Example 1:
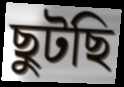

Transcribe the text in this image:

ছুটছি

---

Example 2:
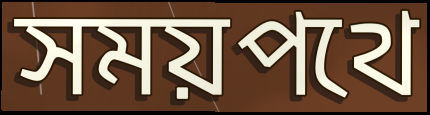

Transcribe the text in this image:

সময়পথে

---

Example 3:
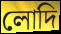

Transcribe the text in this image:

লোদি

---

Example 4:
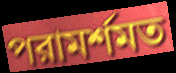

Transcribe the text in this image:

পরামর্শমত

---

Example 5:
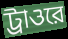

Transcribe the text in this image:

ট্রাওরে